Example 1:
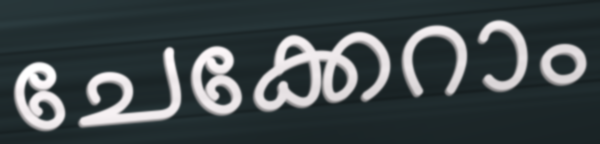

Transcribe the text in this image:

ചേക്കേറാം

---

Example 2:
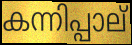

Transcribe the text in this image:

കന്നിപ്പാല്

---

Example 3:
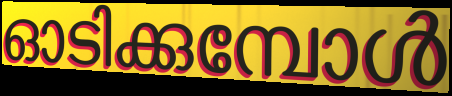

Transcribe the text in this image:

ഓടിക്കുമ്പോൾ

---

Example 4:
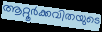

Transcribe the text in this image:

ആറ്റൂർക്കവിതയുടെ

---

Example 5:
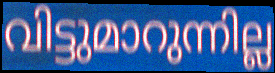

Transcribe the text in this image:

വിട്ടുമാറുന്നില്ല